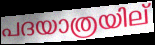
പദയാത്രയില്